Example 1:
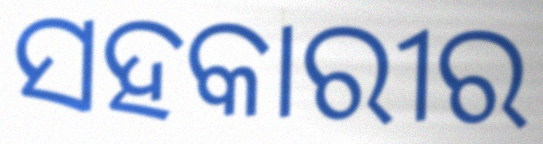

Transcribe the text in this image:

ସହକାରୀର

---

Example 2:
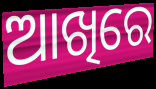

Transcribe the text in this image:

ଆଖିରେ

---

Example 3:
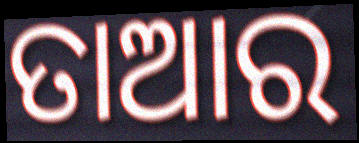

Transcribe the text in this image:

ତାଆର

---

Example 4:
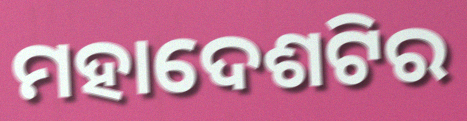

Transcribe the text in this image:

ମହାଦେଶଟିର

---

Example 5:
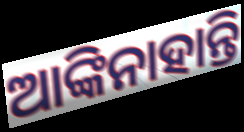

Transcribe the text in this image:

ଆଙ୍କିନାହାନ୍ତି